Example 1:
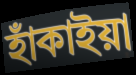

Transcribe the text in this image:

হাঁকাইয়া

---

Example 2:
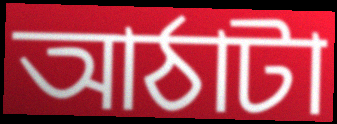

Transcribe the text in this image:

আঠাটা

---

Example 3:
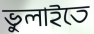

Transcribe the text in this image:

ভুলাইতে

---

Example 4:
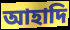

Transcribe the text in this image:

আহাদি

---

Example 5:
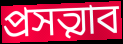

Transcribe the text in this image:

প্রসত্মাব